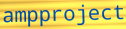
ampproject